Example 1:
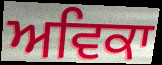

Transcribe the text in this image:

ਅਵਿਕਾ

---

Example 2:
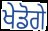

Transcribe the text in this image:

ਖੇਡੋਗੇ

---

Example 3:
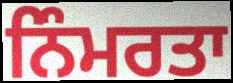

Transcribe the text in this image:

ਨਿੰਮਰਤਾ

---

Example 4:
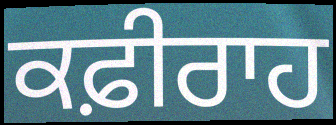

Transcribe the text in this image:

ਕਫ਼ੀਰਾਹ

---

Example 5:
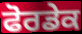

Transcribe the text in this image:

ਫੋਰਡੇਕ